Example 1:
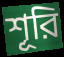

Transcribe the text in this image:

শূরি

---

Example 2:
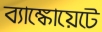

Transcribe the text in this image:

ব্যাঙ্কোয়েটে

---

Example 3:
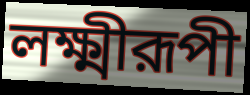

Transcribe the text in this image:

লক্ষ্মীরূপী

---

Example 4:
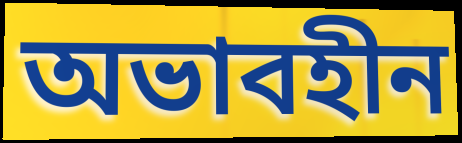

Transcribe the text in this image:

অভাবহীন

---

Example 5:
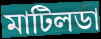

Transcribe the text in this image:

মাটিলডা